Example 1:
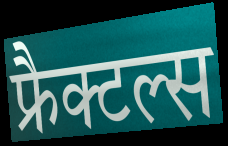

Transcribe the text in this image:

फ्रैक्टल्स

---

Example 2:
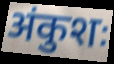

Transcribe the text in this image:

अंकुशः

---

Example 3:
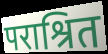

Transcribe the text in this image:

पराश्रित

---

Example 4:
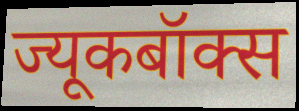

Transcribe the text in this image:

ज्यूकबॉक्स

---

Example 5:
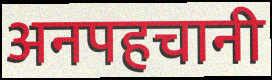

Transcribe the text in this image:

अनपहचानी